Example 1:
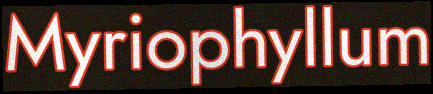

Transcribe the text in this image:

Myriophyllum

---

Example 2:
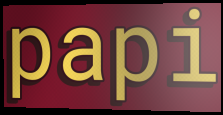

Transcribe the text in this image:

papi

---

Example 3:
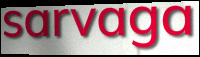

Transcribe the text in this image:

sarvaga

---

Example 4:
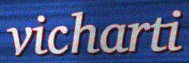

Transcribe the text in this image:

vicharti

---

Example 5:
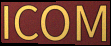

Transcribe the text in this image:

ICOM